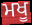
ਮਖੂ